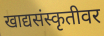
खाद्यसंस्कृतीवर